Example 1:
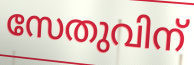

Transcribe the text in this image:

സേതുവിന്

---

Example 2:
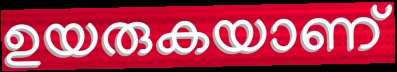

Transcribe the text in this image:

ഉയരുകയാണ്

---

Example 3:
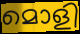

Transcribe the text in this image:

മൊളി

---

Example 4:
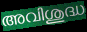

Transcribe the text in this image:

അവിശുദ്ധ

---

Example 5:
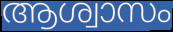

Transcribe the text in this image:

ആശ്വാസം